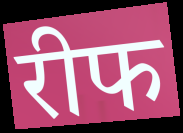
रीफ